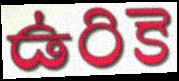
ఉరికె